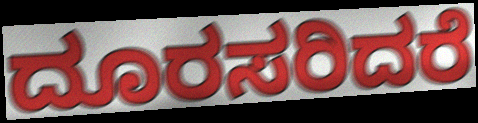
ದೂರಸರಿದರೆ